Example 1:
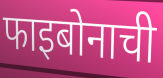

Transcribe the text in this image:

फाइबोनाची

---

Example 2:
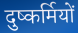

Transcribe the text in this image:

दुष्कर्मियों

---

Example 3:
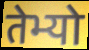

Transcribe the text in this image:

तेभ्यो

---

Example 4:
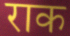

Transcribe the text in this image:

राक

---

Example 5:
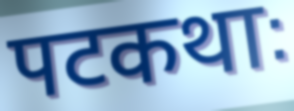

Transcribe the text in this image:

पटकथाः